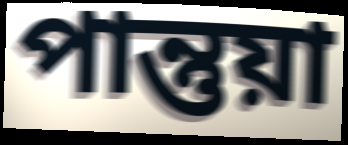
পান্তুয়া